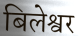
बिलेश्वर